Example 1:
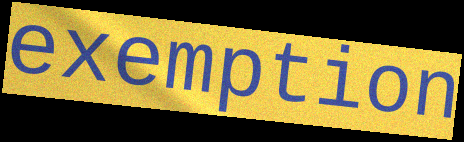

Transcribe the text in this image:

exemption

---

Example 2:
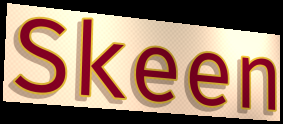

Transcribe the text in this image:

Skeen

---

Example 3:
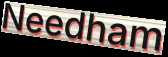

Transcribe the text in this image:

Needham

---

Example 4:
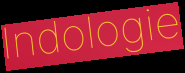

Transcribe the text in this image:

Indologie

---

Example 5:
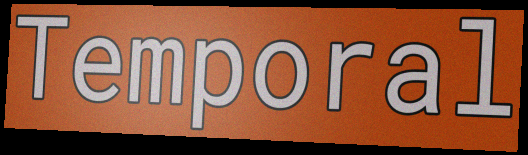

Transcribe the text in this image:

Temporal